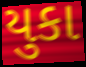
યુકા